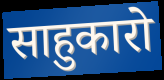
साहुकारो